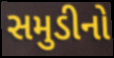
સમુડીનો